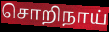
சொறிநாய்